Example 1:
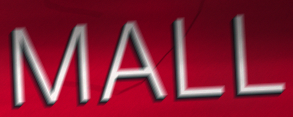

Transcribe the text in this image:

MALL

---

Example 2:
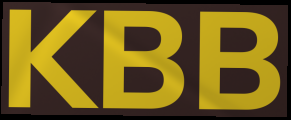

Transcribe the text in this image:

KBB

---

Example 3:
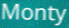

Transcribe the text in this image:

Monty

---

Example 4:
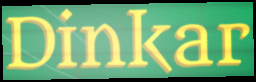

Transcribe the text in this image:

Dinkar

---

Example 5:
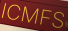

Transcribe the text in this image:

ICMFS